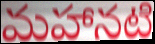
మహానటి